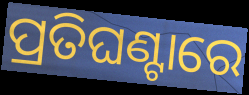
ପ୍ରତିଘଣ୍ଟାରେ